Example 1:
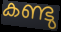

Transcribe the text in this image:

കണ്ടു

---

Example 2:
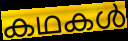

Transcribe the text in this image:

കഥകൾ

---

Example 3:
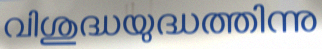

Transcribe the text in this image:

വിശുദ്ധയുദ്ധത്തിന്നു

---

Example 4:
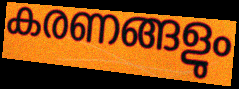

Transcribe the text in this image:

കരണങ്ങളും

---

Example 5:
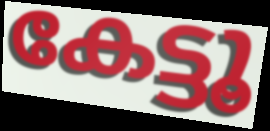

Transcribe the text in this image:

കേട്ടൂ